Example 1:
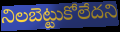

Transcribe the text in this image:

నిలబెట్టుకోలేదని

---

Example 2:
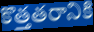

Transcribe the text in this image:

కొత్తతరానికి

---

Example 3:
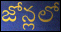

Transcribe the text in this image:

జోన్లలో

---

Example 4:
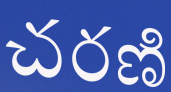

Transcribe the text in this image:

చరణి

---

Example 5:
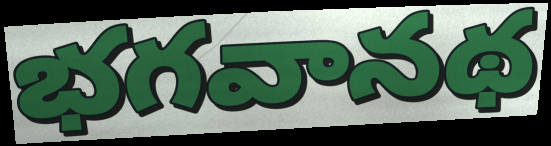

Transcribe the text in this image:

భగవానథ